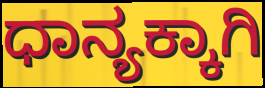
ಧಾನ್ಯಕ್ಕಾಗಿ